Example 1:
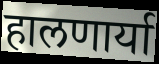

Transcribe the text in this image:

हालणार्या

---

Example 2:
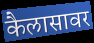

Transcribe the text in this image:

कैलासावर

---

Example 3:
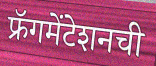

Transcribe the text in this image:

फ्रॅगमेंटेशनची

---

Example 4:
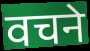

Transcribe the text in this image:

वचने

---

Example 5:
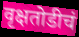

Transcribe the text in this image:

वृक्षतोडीचं